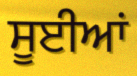
ਸੂਈਆਂ